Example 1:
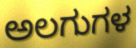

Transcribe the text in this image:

ಅಲಗುಗಳ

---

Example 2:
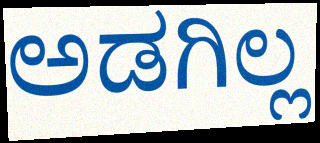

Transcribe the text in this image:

ಅಡಗಿಲ್ಲ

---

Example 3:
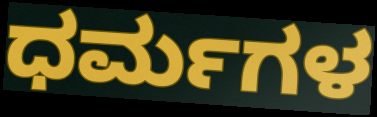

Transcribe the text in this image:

ಧರ್ಮಗಳ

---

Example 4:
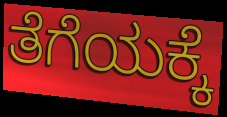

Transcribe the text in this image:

ತೆಗೆಯಕ್ಕೆ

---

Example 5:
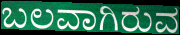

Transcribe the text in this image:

ಬಲವಾಗಿರುವ